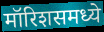
मॉरिशसमध्ये